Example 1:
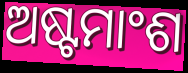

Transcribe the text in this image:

ଅଷ୍ଟମାଂଶ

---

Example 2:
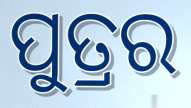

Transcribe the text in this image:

ପୁତ୍ରର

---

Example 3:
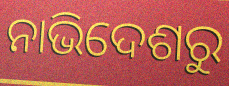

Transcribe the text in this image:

ନାଭିଦେଶରୁ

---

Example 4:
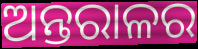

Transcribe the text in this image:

ଅନ୍ତରାଳର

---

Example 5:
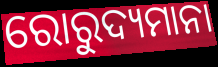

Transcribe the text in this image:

ରୋରୁଦ୍ୟମାନା